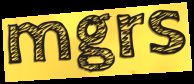
mgrs